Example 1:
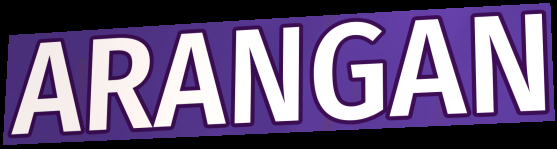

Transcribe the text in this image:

ARANGAN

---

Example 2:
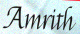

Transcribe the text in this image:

Amrith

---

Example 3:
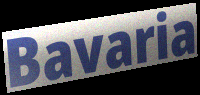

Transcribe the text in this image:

Bavaria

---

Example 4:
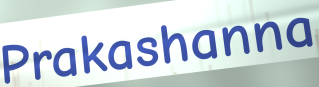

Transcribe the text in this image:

Prakashanna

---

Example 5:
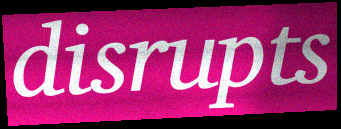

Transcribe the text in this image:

disrupts